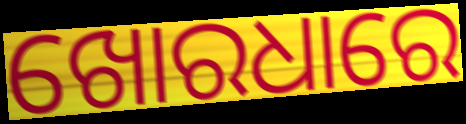
ଖୋରଧାରେ